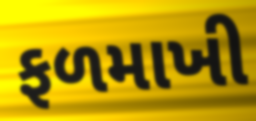
ફળમાખી